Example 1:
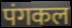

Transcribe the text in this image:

पंगकल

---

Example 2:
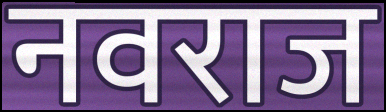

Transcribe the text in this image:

नवराज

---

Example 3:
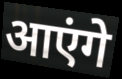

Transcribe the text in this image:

आएंगे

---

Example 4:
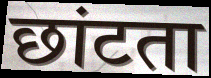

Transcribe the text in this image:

छांटता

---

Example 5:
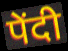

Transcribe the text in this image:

पेंदी